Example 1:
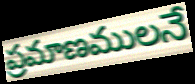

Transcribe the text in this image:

ప్రమాణములనే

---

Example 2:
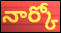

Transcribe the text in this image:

నార్కో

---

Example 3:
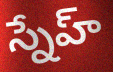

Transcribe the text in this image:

స్నేహ్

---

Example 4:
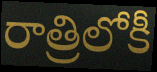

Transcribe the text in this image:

రాత్రిలోకీ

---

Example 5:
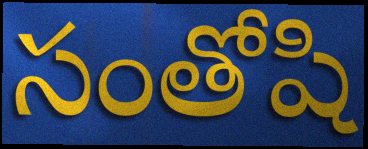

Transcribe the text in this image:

సంతోషి